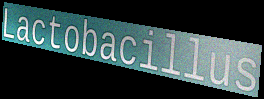
Lactobacillus